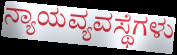
ನ್ಯಾಯವ್ಯವಸ್ಥೆಗಳು